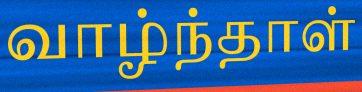
வாழ்ந்தாள்